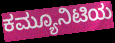
ಕಮ್ಯೂನಿಟಿಯ